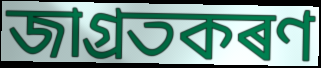
জাগ্ৰতকৰণ